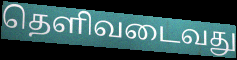
தெளிவடைவது